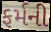
ફર્મની